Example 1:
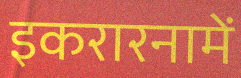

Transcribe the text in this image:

इकरारनामें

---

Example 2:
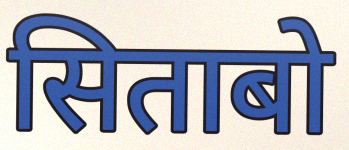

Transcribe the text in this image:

सिताबो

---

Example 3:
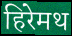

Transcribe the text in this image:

हिरेमथ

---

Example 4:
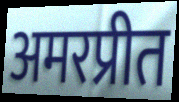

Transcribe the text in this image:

अमरप्रीत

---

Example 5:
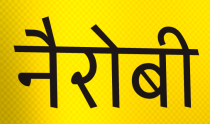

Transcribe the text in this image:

नैरोबी